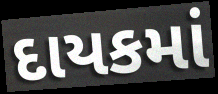
દાયકમાં